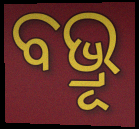
ବଭ୍ରୂ